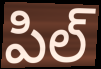
పిల్